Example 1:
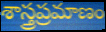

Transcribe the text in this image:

శాస్త్రప్రమాణం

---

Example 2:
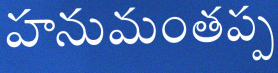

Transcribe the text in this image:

హనుమంతప్ప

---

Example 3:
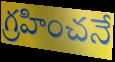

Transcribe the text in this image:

గ్రహించనే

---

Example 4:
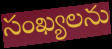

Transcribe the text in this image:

సంఖ్యలను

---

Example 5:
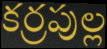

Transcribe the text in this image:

కర్రపుల్ల